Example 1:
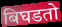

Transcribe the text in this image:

बिघडतो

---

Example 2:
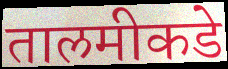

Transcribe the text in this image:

तालमीकडे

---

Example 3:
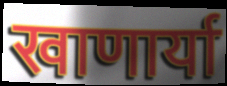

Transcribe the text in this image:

खाणार्या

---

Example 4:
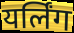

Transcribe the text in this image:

यर्लिंग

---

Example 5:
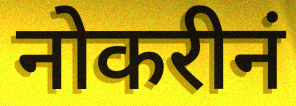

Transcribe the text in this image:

नोकरीनं